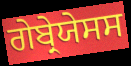
ਗੇਬ੍ਰੇਯੇਸਸ